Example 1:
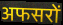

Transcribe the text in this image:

अफसरों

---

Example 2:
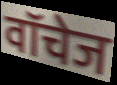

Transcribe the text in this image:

वॉचेज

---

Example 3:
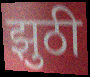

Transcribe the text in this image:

झुठी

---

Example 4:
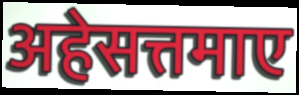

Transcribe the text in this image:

अहेसत्तमाए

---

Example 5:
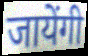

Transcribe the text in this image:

जायेंगी